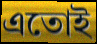
এতোই